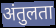
अंतुलता